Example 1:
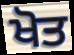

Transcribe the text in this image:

ਖੋਤ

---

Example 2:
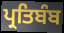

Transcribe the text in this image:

ਪ੍ਰਤਿਬੰਬ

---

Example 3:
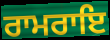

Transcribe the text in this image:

ਰਾਮਰਾਇ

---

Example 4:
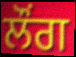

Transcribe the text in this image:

ਲੌਂਗ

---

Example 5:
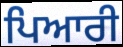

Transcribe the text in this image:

ਪਿਆਰੀ